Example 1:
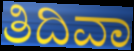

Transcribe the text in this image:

ತಿದಿವಾ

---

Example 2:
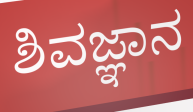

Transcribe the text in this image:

ಶಿವಜ್ಞಾನ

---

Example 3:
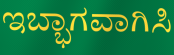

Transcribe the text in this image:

ಇಬ್ಭಾಗವಾಗಿಸಿ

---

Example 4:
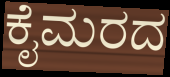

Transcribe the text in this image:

ಕೈಮರದ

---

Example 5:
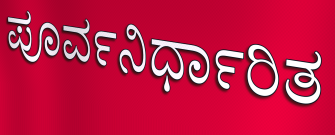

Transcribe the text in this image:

ಪೂರ್ವನಿರ್ಧಾರಿತ